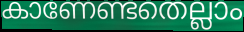
കാണേണ്ടതെല്ലാം